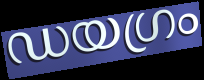
ഡയഗ്രം